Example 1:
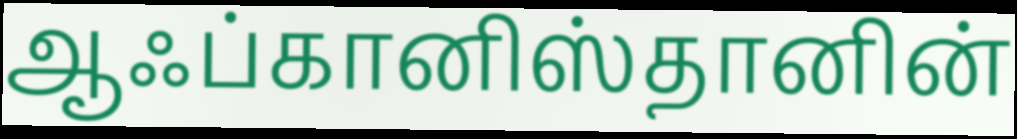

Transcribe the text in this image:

ஆஃப்கானிஸ்தானின்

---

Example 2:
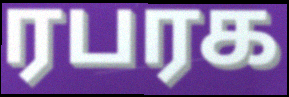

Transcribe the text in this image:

ரபரக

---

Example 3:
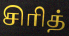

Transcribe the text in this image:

சிரித்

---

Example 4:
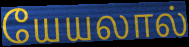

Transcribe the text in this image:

யேயலால்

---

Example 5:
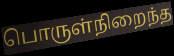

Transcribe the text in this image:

பொருள்நிறைந்த